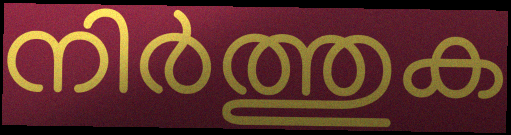
നിർത്തുക